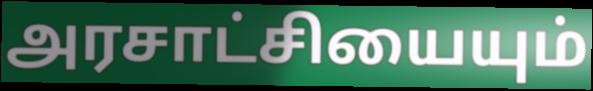
அரசாட்சியையும்